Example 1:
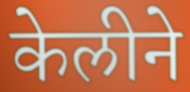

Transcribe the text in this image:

केलीने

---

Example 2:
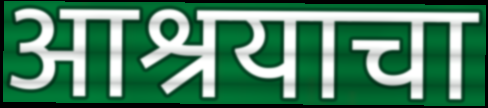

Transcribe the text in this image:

आश्रयाचा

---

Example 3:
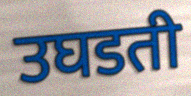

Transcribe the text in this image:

उघडती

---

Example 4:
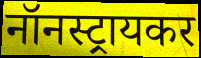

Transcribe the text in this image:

नॉनस्ट्रायकर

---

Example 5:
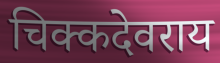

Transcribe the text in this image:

चिक्कदेवराय